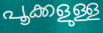
പൂക്കളുള്ള